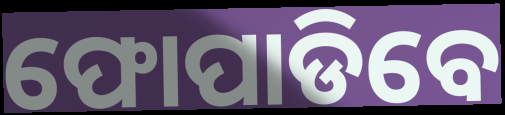
ଫୋପାଡିବେ